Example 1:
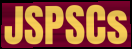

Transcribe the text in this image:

JSPSCs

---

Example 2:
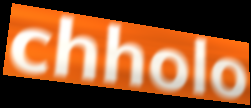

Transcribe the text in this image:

chholo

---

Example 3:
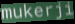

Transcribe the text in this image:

mukerji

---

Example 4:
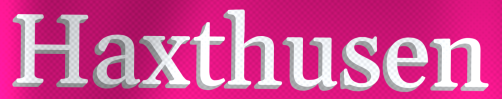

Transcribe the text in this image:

Haxthusen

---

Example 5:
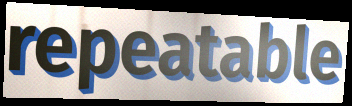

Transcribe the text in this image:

repeatable